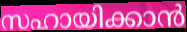
സഹായിക്കാൻ